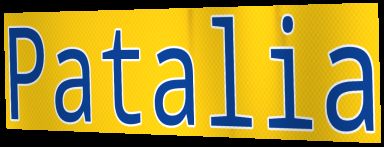
Patalia